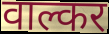
वाल्कर